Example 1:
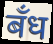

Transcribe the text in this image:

बँध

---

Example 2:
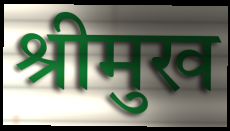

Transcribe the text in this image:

श्रीमुख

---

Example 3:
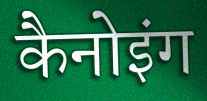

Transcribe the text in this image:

कैनोइंग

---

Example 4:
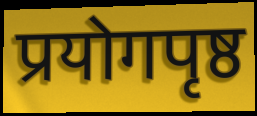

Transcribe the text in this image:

प्रयोगपृष्ठ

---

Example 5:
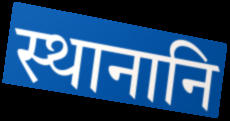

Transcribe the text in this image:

स्थानानि